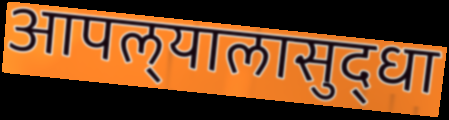
आपल्यालासुद्धा